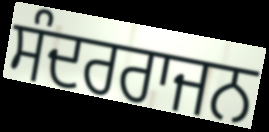
ਸੰਦਰਰਾਜਨ